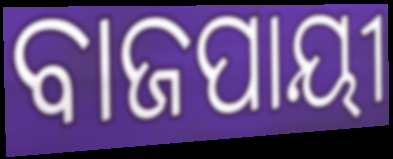
ବାଜପାୟୀ